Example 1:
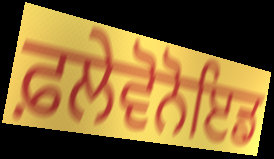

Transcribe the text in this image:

ਫ਼ਲੇਵੋਨੋਇਡ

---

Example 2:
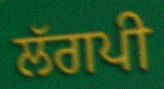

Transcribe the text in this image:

ਲੱਗਪੀ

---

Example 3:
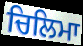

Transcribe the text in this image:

ਚਿਲਿਮਾ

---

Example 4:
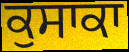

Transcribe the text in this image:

ਕੁਸਾਕਾ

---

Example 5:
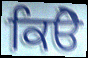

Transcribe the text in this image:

ਕਿੳੇ